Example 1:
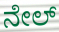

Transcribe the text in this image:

ನೇಲ್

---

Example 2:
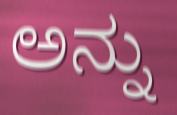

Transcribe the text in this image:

ಅನ್ನು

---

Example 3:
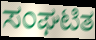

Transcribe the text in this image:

ಸಂಘಟಿತ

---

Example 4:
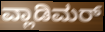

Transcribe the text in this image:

ವ್ಲಾಡಿಮರ್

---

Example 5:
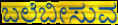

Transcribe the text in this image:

ಬಲೆಬೀಸುವ